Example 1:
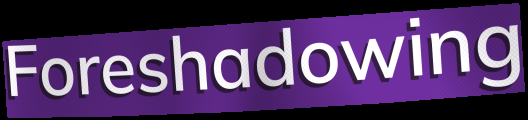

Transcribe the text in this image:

Foreshadowing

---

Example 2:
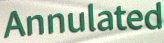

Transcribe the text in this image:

Annulated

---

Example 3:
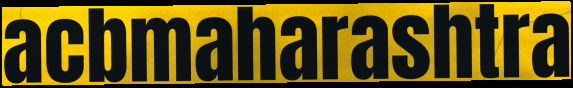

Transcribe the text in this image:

acbmaharashtra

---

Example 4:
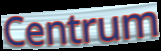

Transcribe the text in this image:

Centrum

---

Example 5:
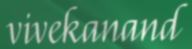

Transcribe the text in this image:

vivekanand